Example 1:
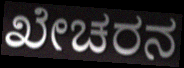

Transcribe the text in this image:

ಖೇಚರನ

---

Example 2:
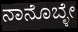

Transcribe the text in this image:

ನಾನೊಬ್ಳೇ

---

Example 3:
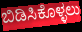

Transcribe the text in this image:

ಬಿಡಿಸಿಕೊಳ್ಳಲು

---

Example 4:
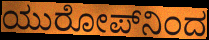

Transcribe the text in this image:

ಯುರೋಪ್‌ನಿಂದ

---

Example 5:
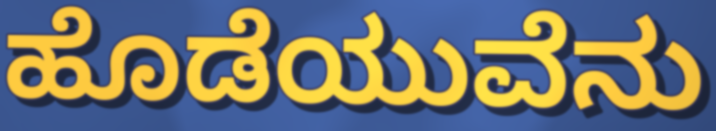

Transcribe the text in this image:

ಹೊಡೆಯುವೆನು